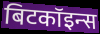
बिटकॉइन्स